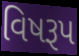
વિષરૂપ